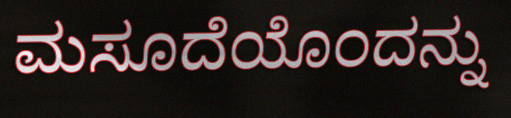
ಮಸೂದೆಯೊಂದನ್ನು